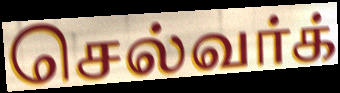
செல்வர்க்